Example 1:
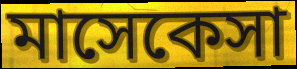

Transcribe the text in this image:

মাসেকেসা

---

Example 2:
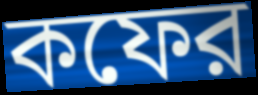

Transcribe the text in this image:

কফের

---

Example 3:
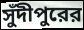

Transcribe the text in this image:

সুঁদীপুরের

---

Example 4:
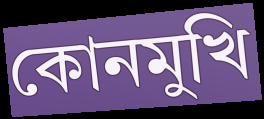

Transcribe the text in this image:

কোনমুখি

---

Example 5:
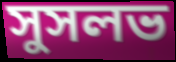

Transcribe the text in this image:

সুসলভ